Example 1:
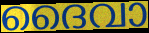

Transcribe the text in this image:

ദൈവാ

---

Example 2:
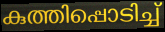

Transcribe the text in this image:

കുത്തിപ്പൊടിച്ച്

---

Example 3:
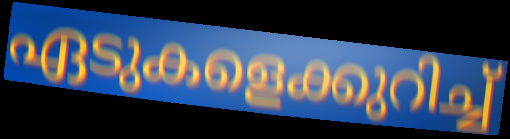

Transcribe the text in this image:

ഏടുകളെക്കുറിച്ച്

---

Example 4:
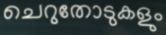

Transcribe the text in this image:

ചെറുതോടുകളും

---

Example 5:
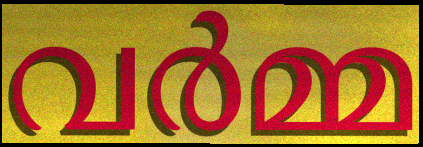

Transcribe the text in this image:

വർമ്മ